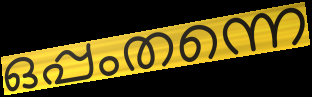
ഒപ്പംതന്നെ